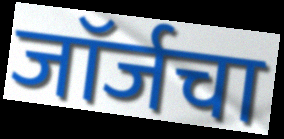
जॉर्जचा